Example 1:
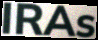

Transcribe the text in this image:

IRAs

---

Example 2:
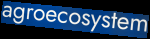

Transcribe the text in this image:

agroecosystem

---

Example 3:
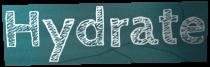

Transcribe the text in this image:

Hydrate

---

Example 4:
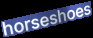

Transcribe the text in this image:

horseshoes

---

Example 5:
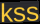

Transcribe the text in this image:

kss